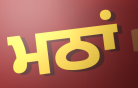
ਮਠਾਂ